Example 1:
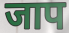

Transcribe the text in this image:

जाप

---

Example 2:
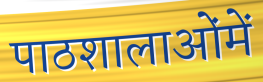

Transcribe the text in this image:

पाठशालाओंमें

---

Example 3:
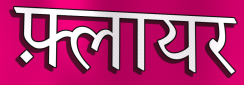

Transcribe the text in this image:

फ़्लायर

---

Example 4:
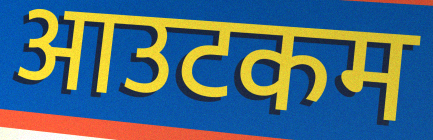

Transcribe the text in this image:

आउटकम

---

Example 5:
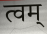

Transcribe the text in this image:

त्वम्